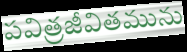
పవిత్రజీవితమును